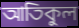
আতিকুল